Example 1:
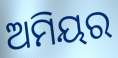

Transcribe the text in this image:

ଅମିୟର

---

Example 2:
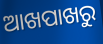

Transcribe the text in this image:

ଆଖପାଖରୁ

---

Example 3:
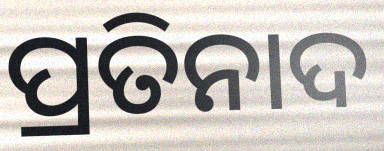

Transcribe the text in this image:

ପ୍ରତିନାଦ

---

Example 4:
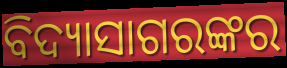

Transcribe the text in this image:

ବିଦ୍ୟାସାଗରଙ୍କର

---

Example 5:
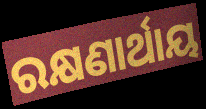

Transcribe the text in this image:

ରକ୍ଷଣାର୍ଥାୟ